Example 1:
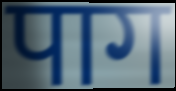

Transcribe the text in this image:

पाग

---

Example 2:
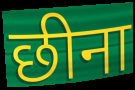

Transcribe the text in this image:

छीना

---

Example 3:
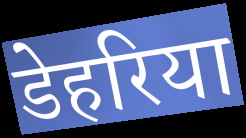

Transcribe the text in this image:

डेहरिया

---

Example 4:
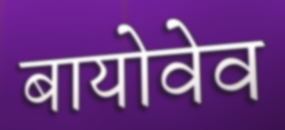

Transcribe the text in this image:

बायोवेव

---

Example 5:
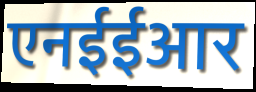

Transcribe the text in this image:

एनईईआर